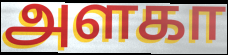
அளகா